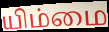
யிம்மை